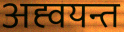
अह्वयन्त